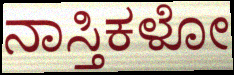
ನಾಸ್ತಿಕಳೋ